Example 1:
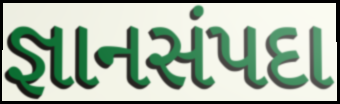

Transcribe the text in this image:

જ્ઞાનસંપદા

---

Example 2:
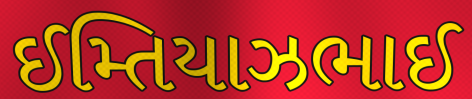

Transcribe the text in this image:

ઈમ્તિયાઝભાઈ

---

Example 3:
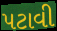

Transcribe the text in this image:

પટાવી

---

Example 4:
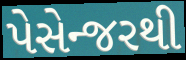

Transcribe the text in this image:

પેસેન્જરથી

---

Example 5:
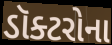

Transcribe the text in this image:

ડૉક્ટરોના